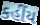
કહીંય